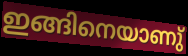
ഇങ്ങിനെയാണു്